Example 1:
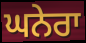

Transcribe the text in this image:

ਘਨੇਰਾ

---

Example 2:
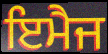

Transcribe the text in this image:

ਇਮੈਜ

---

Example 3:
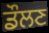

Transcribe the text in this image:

ਡੌਲਣ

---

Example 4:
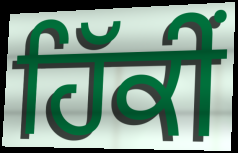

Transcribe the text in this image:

ਹਿੱਕੀਂ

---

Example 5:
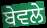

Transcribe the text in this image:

ਬੇਵਲੇ